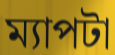
ম্যাপটা